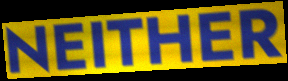
NEITHER